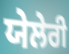
ਯੇਲੇਰੀ